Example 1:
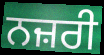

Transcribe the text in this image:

ਨਜ਼ਰੀ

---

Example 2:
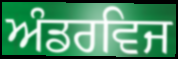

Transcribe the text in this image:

ਅੰਡਰਵਿਜ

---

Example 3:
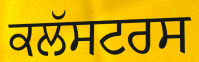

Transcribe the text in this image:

ਕਲੱਸਟਰਸ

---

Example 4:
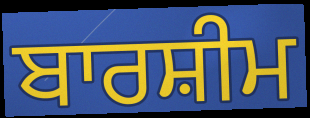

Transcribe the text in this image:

ਬਾਰਸ਼ੀਮ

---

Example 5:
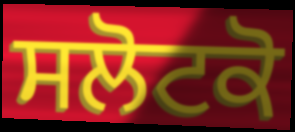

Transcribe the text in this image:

ਸਲੋਟਕੋ